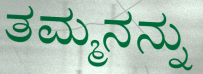
ತಮ್ಮನನ್ನು